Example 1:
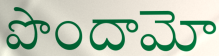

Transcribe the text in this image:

పొందామో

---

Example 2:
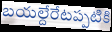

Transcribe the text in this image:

బయల్దేరేటప్పటికి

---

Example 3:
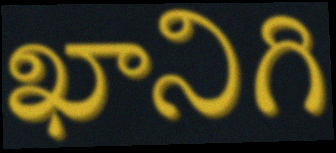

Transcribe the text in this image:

ఖానిగి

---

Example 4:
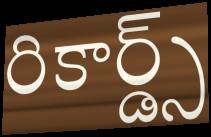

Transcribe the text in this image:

రికార్డ్స్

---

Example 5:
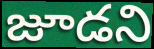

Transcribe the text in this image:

జూడని